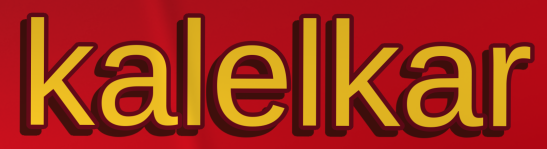
kalelkar